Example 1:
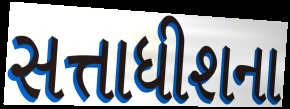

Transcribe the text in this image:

સત્તાધીશના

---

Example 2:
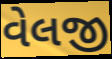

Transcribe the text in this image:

વેલજી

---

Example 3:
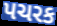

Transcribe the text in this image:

પચરક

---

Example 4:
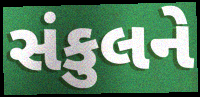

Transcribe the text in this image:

સંકુલને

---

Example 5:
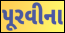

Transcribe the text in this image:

પૂરવીના